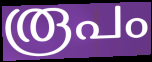
രൂപം